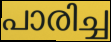
പാരിച്ച